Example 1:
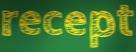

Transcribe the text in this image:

recept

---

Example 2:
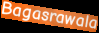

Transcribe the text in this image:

Bagasrawala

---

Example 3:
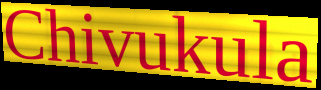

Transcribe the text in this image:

Chivukula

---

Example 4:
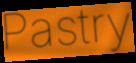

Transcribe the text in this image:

Pastry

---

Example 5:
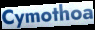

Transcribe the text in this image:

Cymothoa